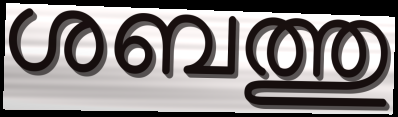
ശബത്തു